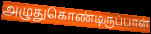
அழுதுகொண்டிருப்பாள்